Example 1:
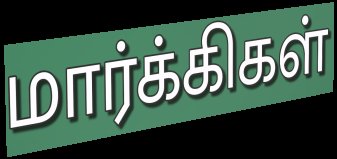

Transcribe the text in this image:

மார்க்கிகள்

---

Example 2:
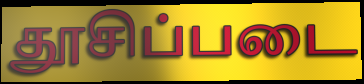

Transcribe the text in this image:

தூசிப்படை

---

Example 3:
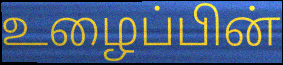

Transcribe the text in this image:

உழைப்பின்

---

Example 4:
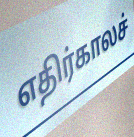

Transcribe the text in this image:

எதிர்காலச்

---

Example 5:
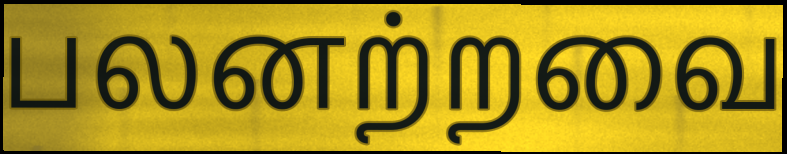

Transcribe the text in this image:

பலனற்றவை